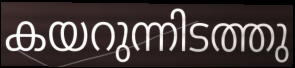
കയറുന്നിടത്തു